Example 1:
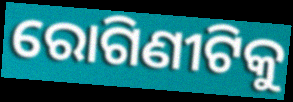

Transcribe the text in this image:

ରୋଗିଣୀଟିକୁ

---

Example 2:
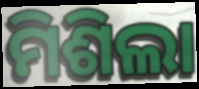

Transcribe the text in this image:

ମିଶିଲା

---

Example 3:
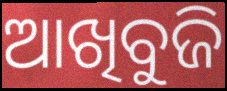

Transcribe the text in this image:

ଆଖିବୁଜି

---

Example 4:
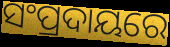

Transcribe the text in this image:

ସଂପ୍ରଦାୟରେ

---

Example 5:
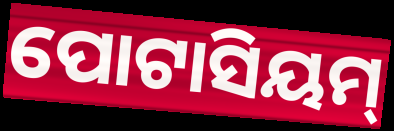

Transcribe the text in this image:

ପୋଟାସିୟମ୍